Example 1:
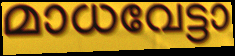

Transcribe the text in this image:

മാധവേട്ടാ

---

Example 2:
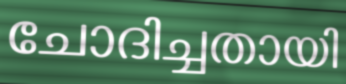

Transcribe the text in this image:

ചോദിച്ചതായി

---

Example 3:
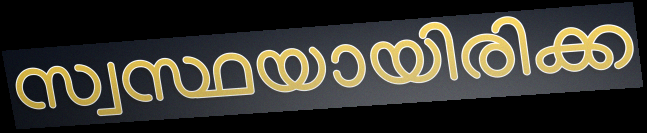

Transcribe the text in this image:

സ്വസ്ഥയായിരിക്ക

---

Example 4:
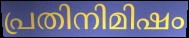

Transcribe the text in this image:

പ്രതിനിമിഷം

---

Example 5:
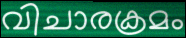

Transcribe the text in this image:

വിചാരക്രമം